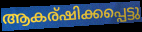
ആകര്ഷിക്കപ്പെട്ടു